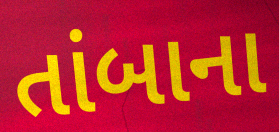
તાંબાના